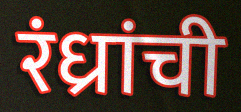
रंध्रांची